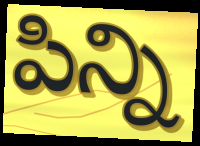
పిన్ని